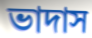
ভাদাস